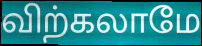
விற்கலாமே